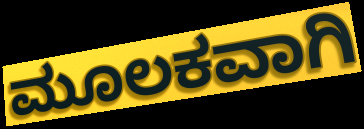
ಮೂಲಕವಾಗಿ